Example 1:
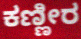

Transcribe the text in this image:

ಕಣ್ಣೀರ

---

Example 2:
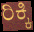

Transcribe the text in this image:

ರಿಕ್ಕಿ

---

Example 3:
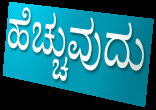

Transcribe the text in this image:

ಹೆಚ್ಚುವುದು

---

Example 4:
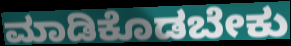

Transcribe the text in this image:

ಮಾಡಿಕೊಡಬೇಕು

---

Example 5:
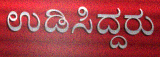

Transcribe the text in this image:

ಉಡಿಸಿದ್ದರು